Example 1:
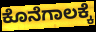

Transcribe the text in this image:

ಕೊನೆಗಾಲಕ್ಕೆ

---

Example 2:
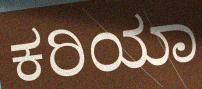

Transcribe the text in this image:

ಕರಿಯಾ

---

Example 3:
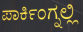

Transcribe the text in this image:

ಪಾರ್ಕಿಂಗ್ನಲ್ಲಿ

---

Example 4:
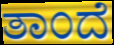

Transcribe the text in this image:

ತಾಂದೆ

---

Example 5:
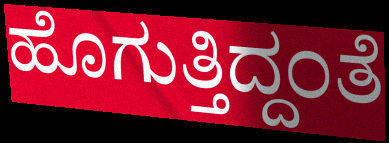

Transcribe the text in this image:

ಹೊಗುತ್ತಿದ್ದಂತೆ